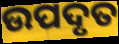
ଉପଦୃତ